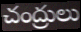
చంద్రులు